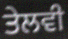
ਤੇਲਵੀ